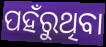
ପହଁରୁଥିବା